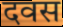
दवस